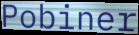
Pobiner